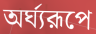
অর্ঘ্যরূপে